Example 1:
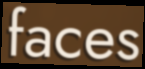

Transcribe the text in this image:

faces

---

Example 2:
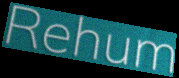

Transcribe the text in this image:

Rehum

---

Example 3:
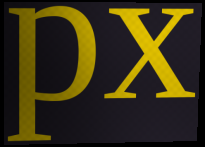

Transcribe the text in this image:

px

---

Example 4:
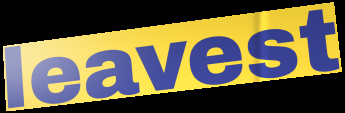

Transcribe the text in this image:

leavest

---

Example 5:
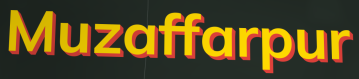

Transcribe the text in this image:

Muzaffarpur